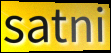
satni